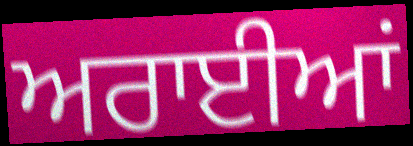
ਅਰਾਈਆਂ